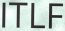
ITLF